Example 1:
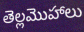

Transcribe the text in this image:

తెల్లమొహాలు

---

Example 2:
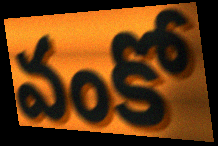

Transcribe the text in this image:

వంకో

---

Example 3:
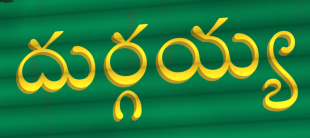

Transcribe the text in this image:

దుర్గయ్య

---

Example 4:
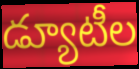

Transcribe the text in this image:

డ్యూటీల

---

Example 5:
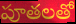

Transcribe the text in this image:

పూతలతో